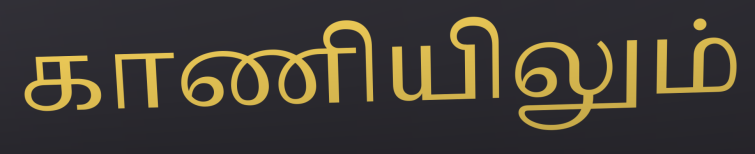
காணியிலும்